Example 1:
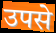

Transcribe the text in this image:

उपसे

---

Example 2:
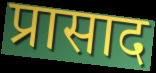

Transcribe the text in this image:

प्रासाद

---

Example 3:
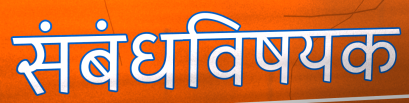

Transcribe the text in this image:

संबंधविषयक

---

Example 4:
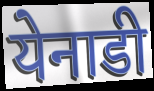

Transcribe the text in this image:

येनाडी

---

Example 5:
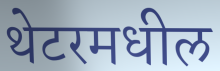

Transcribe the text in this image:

थेटरमधील